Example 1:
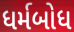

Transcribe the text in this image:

ધર્મબોધ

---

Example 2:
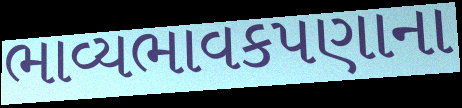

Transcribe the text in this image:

ભાવ્યભાવકપણાના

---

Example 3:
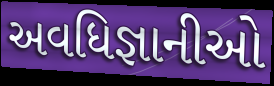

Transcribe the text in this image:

અવધિજ્ઞાનીઓ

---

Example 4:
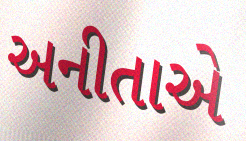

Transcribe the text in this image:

અનીતાએ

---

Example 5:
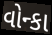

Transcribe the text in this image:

વોન્કા